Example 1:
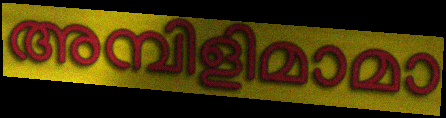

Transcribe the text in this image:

അമ്പിളിമാമാ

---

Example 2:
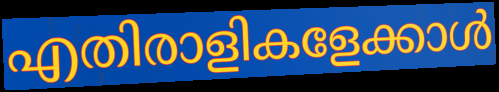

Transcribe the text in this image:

എതിരാളികളേക്കാൾ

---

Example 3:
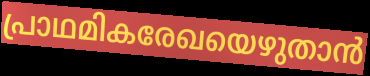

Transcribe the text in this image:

പ്രാഥമികരേഖയെഴുതാൻ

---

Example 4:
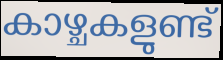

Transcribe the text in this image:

കാഴ്ചകളുണ്ട്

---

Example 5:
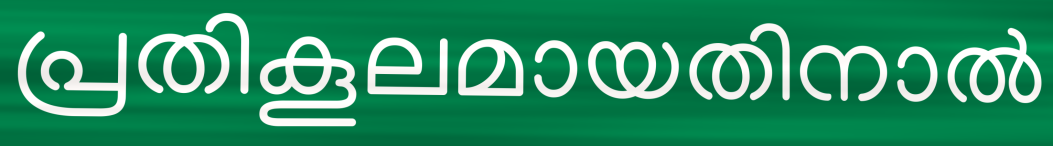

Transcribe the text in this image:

പ്രതികൂലമായതിനാൽ